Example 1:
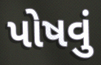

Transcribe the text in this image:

પોષવું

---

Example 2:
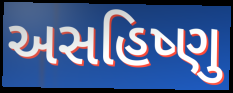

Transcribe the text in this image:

અસહિષ્ણુ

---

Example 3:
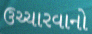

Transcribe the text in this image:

ઉચ્ચારવાનો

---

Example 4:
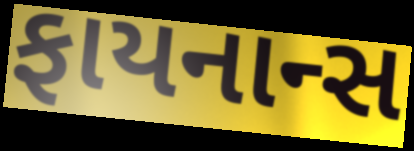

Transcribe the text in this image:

ફાયનાન્સ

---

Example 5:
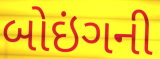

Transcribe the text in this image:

બોઇંગની